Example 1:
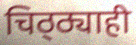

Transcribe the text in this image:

चिठ्ठ्याही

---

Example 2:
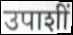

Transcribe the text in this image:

उपाशीं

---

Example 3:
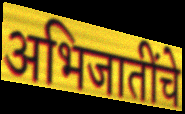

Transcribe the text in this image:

अभिजातींचे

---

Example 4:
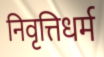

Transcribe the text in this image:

निवृत्तिधर्म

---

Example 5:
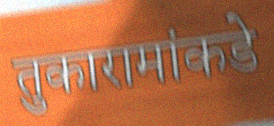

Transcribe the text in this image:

तुकारामांकडे